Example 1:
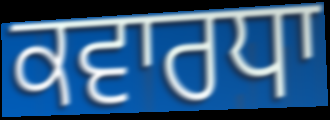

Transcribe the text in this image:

ਕਵਾਰਧਾ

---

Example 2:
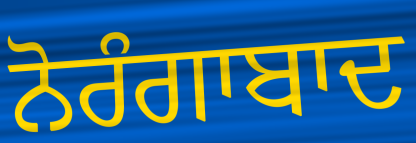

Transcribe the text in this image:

ਨੋਰੰਗਾਬਾਦ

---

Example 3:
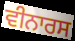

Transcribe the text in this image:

ਵੀਨਾਰਸ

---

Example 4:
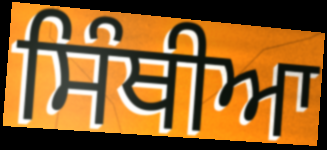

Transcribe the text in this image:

ਸਿੰਥੀਆ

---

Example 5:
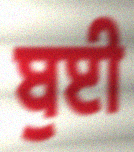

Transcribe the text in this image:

ਬੁਈ